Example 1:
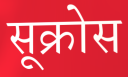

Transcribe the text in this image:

सूक्रोस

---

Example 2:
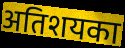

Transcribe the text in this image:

अतिशयका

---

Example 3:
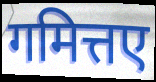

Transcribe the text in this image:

गमित्तए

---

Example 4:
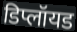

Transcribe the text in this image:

डिप्लॉयड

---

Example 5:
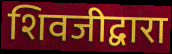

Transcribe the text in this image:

शिवजीद्वारा